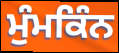
ਮੁੰਮਕਿੰਨ